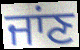
ਜਾਂਣ